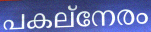
പകല്നേരം